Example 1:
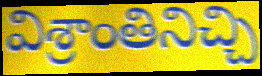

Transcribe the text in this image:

విశ్రాంతినిచ్చి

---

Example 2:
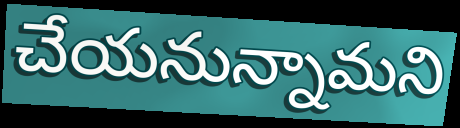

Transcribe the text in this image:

చేయనున్నామని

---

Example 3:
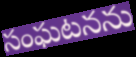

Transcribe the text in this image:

సంఘటనను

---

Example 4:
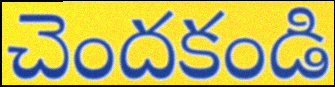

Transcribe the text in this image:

చెందకండి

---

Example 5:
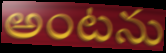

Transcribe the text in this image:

అంటను